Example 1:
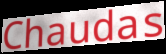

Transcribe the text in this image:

Chaudas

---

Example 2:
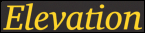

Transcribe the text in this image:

Elevation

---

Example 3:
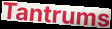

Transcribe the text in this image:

Tantrums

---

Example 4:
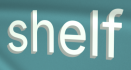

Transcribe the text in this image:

shelf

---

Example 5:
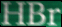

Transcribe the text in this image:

HBr